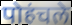
पोहंचले